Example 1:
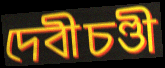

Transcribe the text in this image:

দেবীচণ্ডী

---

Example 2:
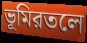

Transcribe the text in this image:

ভূমিরতলে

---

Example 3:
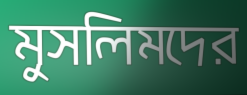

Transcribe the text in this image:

মুসলিমদের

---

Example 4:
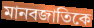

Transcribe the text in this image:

মানবজাতিকে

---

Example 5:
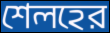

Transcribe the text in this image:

শেলহের